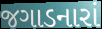
જગાડનારાં